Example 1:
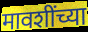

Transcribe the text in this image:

मावशींच्या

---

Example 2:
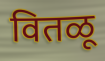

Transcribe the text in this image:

वितळू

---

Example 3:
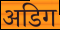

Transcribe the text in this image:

अडिग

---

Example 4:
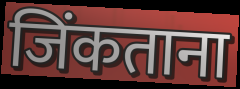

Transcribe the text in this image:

जिंकताना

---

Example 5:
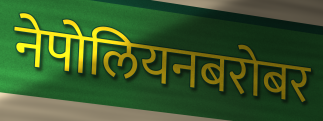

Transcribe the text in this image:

नेपोलियनबरोबर